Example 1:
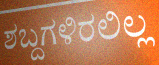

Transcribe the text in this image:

ಶಬ್ದಗಳಿರಲಿಲ್ಲ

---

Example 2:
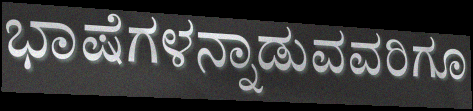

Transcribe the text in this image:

ಭಾಷೆಗಳನ್ನಾಡುವವರಿಗೂ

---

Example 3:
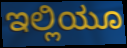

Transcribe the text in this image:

ಇಲ್ಲಿಯೂ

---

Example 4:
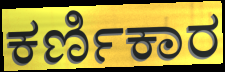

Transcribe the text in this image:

ಕರ್ಣಿಕಾರ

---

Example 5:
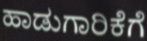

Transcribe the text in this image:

ಹಾಡುಗಾರಿಕೆಗೆ